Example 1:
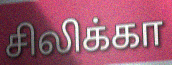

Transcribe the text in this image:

சிலிக்கா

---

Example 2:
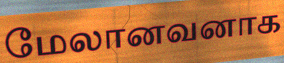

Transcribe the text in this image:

மேலானவனாக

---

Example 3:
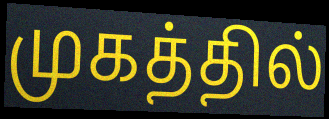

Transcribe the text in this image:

முகத்தில்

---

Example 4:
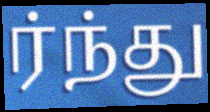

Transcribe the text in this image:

ர்ந்து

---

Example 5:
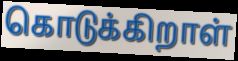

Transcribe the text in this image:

கொடுக்கிறாள்